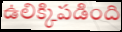
ఉలిక్కిపడింది